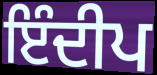
ਇੰਦੀਪ